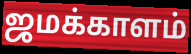
ஜமக்காளம்